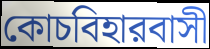
কোচবিহারবাসী